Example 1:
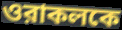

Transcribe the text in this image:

ওরাকলকে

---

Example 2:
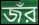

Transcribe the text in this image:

জঁর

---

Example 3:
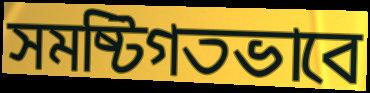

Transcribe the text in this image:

সমষ্টিগতভাবে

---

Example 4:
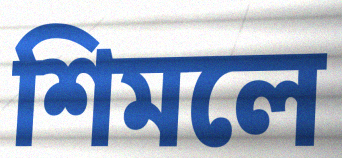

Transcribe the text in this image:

শিমলে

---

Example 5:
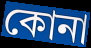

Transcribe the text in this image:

কোনা